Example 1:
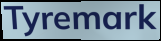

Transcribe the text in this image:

Tyremark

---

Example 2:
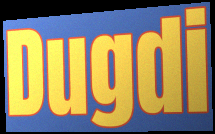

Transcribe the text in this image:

Dugdi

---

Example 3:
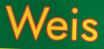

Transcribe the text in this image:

Weis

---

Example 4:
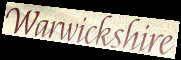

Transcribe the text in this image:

Warwickshire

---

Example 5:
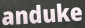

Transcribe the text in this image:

anduke